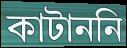
কাটাননি